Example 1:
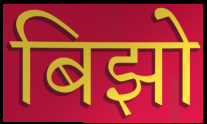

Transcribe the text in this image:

बिझो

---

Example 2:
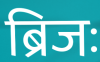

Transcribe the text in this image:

ब्रिजः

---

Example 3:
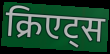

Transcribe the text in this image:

क्रिएट्स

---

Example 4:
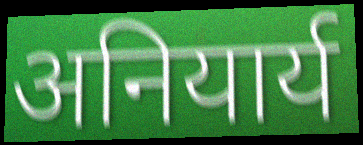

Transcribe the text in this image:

अनियार्य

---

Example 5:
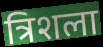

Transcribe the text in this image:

त्रिशला